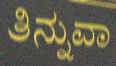
ತಿನ್ನುವಾ